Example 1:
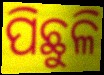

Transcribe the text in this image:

ପିଛୁଳି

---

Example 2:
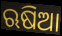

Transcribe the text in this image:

ଋଷିଆ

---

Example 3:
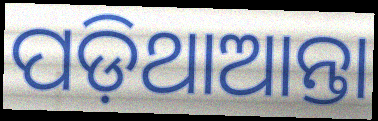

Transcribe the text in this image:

ପଡ଼ିଥାଆନ୍ତା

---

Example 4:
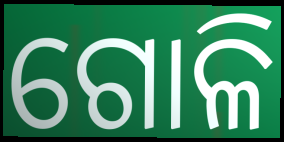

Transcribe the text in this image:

ଗୋଳି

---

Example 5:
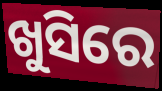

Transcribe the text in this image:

ଖୁସିରେ